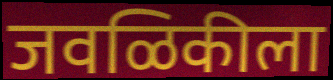
जवळिकीला